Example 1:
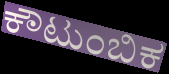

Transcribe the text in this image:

ಕೌಟುಂಬಿಕ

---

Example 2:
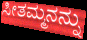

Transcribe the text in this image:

ಸೀತಮ್ಮನನ್ನು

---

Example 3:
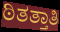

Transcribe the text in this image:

ಠಿತತ್ತಾತಿ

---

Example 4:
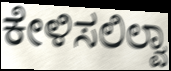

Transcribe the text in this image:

ಕೇಳಿಸಲಿಲ್ವಾ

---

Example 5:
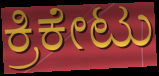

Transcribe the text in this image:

ಕ್ರಿಕೇಟು